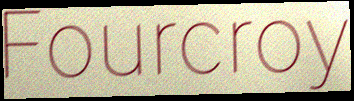
Fourcroy